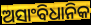
ଅସାଂବିଧାନିକ